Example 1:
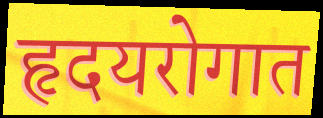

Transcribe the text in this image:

हृदयरोगात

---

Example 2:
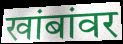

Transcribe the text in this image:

खांबांवर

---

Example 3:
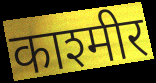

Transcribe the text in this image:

काश्मीर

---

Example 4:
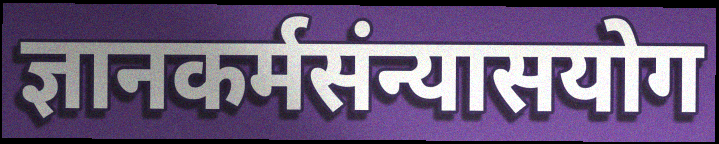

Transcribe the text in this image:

ज्ञानकर्मसंन्यासयोग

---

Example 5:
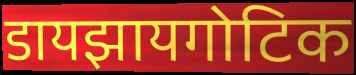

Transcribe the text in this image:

डायझायगोटिक